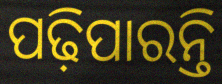
ପଢ଼ିପାରନ୍ତି